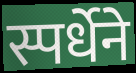
स्पर्धेने